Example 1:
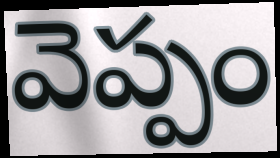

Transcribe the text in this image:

వెప్పం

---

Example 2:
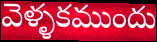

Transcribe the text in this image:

వెళ్ళకముందు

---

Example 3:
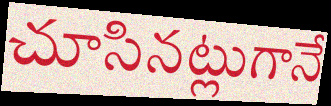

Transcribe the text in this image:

చూసినట్లుగానే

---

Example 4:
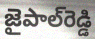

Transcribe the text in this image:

జైపాల్‌రెడ్డి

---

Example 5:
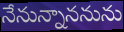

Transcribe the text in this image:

నేనున్నాననును